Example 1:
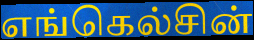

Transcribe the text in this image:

எங்கெல்சின்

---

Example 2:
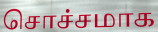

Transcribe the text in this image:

சொச்சமாக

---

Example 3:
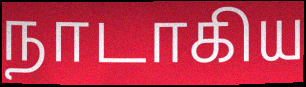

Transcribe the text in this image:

நாடாகிய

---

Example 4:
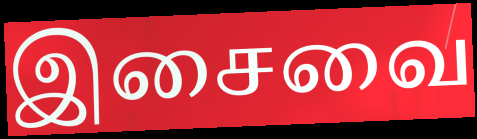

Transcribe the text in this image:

இசைவை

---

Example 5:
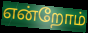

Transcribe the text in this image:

என்றோம்